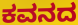
ಕವನದ